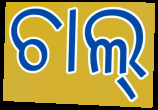
ଚାଲ୍